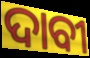
ଦାବୀ